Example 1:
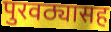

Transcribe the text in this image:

पुरवठ्यासह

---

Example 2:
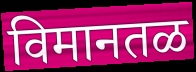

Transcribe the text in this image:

विमानतळ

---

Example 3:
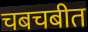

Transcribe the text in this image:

चबचबीत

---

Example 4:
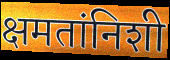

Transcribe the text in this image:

क्षमतांनिशी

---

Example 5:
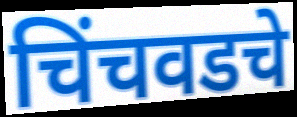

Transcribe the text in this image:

चिंचवडचे